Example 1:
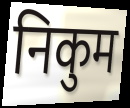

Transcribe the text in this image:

निकुम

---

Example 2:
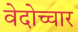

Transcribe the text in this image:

वेदोच्चार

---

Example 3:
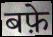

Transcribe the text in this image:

बफ़े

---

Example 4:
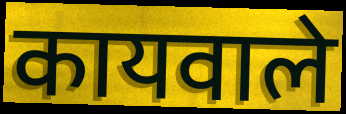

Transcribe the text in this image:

कायवाले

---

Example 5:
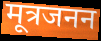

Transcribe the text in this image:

मूत्रजनन